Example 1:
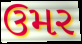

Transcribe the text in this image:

ઉમર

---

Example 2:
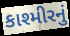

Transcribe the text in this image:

કાશ્મીરનું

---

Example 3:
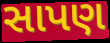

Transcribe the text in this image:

સાપણ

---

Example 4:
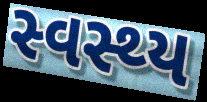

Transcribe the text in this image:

સ્વસ્થ્ય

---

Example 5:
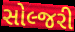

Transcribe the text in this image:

સોલ્જરી